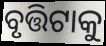
ବୃତ୍ତିଟାକୁ